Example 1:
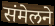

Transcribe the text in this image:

संमेलने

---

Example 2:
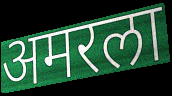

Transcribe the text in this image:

अमरला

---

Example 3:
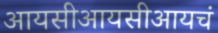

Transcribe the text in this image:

आयसीआयसीआयचं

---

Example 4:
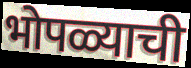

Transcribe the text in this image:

भोपळ्याची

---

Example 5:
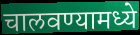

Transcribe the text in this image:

चालवण्यामध्ये